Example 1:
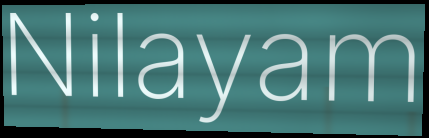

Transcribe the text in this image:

Nilayam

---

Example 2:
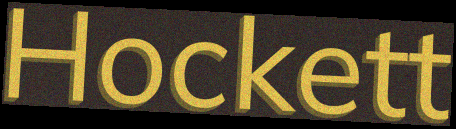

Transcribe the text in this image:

Hockett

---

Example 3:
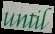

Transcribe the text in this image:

until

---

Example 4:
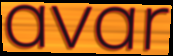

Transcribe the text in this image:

avar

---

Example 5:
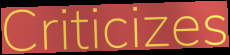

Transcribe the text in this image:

Criticizes